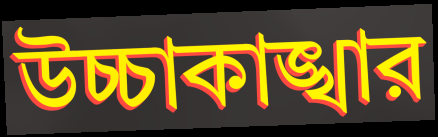
উচ্চাকাঙ্খার